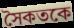
সৈকতকে